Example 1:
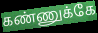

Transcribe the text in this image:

கண்ணுக்கே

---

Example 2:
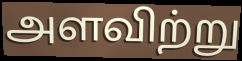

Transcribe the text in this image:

அளவிற்று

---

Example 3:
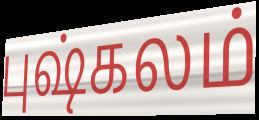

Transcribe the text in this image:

புஷ்கலம்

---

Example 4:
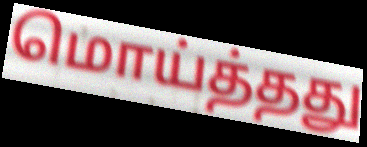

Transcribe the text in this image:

மொய்த்தது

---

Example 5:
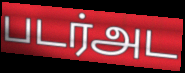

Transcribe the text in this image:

படர்அட